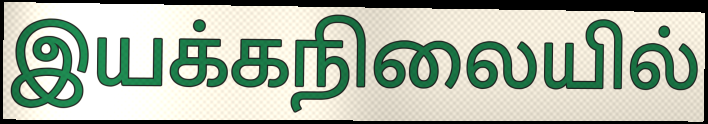
இயக்கநிலையில்